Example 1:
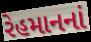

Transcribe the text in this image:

રેહમાનનાં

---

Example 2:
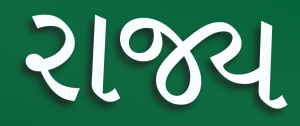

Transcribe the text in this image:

રાજ્ય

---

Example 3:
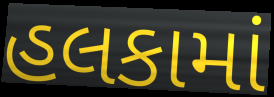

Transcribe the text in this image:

હલકામાં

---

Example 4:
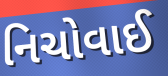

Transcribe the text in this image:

નિચોવાઈ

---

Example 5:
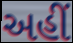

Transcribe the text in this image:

અહીં